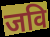
जवि